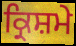
ਕ੍ਰਿਸ਼ਮੇ